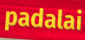
padalai